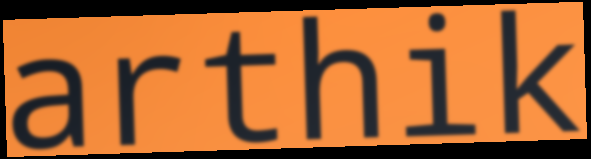
arthik